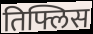
तिफ्लिस